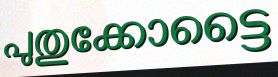
പുതുക്കോട്ടൈ